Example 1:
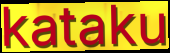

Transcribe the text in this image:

kataku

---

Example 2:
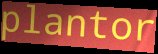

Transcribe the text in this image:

plantor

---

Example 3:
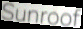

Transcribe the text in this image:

Sunroof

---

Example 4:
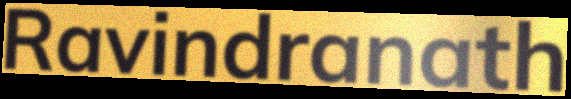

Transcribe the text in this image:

Ravindranath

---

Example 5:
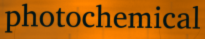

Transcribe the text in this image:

photochemical